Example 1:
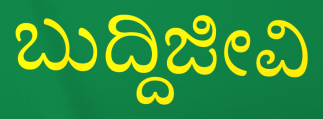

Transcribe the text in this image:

ಬುದ್ದಿಜೀವಿ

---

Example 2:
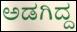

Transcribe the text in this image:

ಅಡಗಿದ್ದ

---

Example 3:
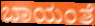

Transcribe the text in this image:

ಬಾಯಂತೆ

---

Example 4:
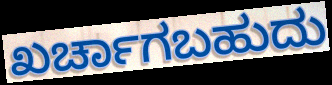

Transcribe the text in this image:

ಖರ್ಚಾಗಬಹುದು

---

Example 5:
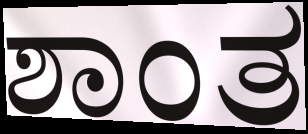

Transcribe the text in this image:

ಶಾಂತ